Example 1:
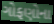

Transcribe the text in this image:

ગોફણોના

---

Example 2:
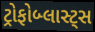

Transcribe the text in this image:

ટ્રોફોબ્લાસ્ટ્સ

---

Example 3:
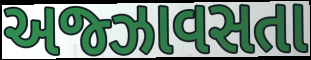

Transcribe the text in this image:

અજ્ઝાવસતા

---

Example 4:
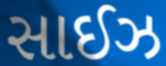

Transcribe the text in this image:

સાઈઝ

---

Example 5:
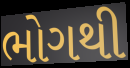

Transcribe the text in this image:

ભોગથી